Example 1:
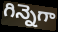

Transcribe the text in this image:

గిన్నెగా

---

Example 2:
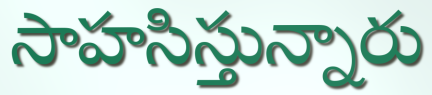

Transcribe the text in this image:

సాహసిస్తున్నారు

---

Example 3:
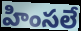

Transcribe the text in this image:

హింసలే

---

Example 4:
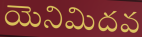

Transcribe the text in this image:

యెనిమిదవ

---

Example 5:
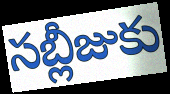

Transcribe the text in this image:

సబ్లీజుకు